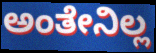
ಅಂತೇನಿಲ್ಲ